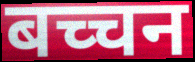
बच्चन